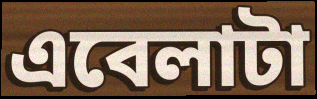
এবেলাটা